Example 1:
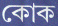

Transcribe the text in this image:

কোক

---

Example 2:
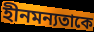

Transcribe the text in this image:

হীনমন্যতাকে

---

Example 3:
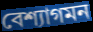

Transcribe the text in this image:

বেশ্যাগমন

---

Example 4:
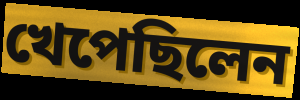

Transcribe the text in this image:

খেপেছিলেন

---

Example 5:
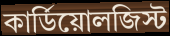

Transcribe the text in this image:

কার্ডিয়োলজিস্ট